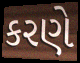
કરણે